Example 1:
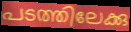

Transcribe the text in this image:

പടത്തിലേക്കു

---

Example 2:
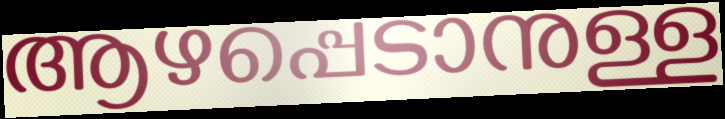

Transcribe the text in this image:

ആഴപ്പെടാനുള്ള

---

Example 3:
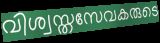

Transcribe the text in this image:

വിശ്വസ്തസേവകരുടെ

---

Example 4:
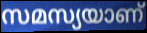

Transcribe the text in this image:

സമസ്യയാണ്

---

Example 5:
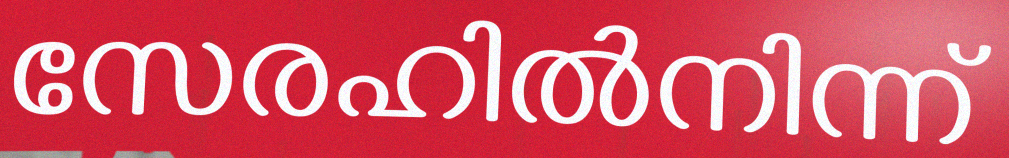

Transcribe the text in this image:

സേരഹിൽനിന്ന്